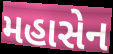
મહાસેન